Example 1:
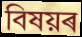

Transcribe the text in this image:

বিষয়ৰ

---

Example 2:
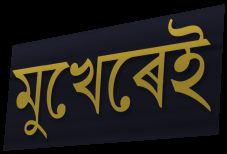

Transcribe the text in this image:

মুখেৰেই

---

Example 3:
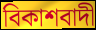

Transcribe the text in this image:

বিকাশবাদী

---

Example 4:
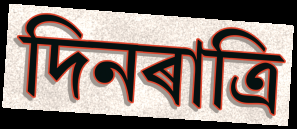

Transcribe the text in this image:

দিনৰাত্ৰি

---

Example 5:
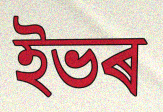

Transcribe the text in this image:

ইভৰ